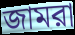
জামরা